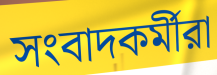
সংবাদকর্মীরা